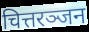
चित्तरञ्जन